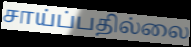
சாய்ப்பதில்லை